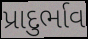
પ્રાદુર્ભાવ